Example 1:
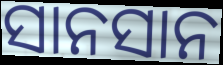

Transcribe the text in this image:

ସାନସାନ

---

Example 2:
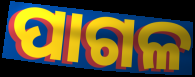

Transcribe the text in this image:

ପାଗଳ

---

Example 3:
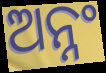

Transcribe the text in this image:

ଅନ୍ନଂ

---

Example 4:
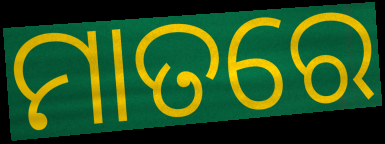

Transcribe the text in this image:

ମାତରେ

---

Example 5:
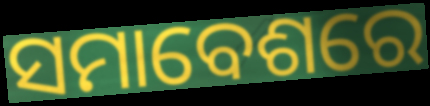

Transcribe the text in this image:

ସମାବେଶରେ